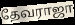
தேவராஜா